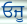
ਓਜੂ